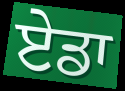
ਏਡਾ